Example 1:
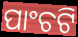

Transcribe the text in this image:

ପାଂଚଟି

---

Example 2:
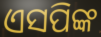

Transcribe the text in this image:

ଏସପିଙ୍କ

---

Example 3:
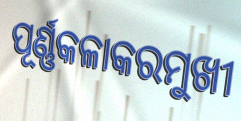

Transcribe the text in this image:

ପୂର୍ଣ୍ଣକଳାକରମୁଖୀ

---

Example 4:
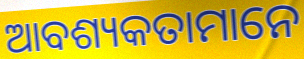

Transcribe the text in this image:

ଆବଶ୍ୟକତାମାନେ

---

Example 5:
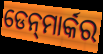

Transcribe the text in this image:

ଡେନ୍‍ମାର୍କର